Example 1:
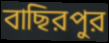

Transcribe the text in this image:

বাছিরপুর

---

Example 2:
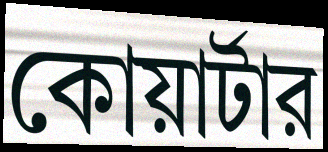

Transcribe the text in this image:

কোয়ার্টার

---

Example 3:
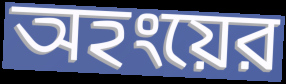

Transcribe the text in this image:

অহংয়ের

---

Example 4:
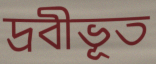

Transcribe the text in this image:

দ্রবীভূত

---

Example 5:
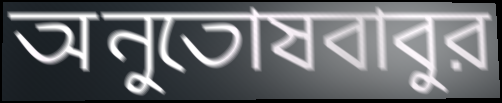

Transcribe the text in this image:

অনুতোষবাবুর